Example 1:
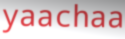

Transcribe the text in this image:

yaachaa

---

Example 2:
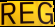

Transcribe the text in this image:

REG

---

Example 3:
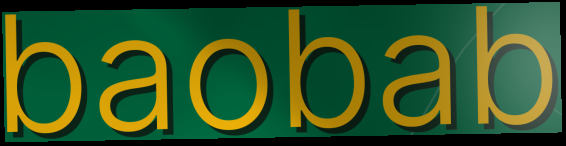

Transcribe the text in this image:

baobab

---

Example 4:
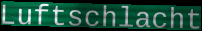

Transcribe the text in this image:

Luftschlacht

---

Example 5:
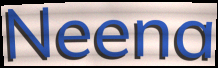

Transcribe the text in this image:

Neena